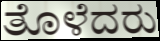
ತೊಳೆದರು